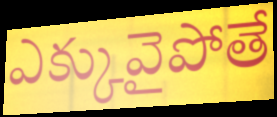
ఎక్కువైపోతే